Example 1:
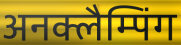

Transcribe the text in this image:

अनक्लैम्पिंग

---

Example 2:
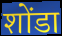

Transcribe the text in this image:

शोंडा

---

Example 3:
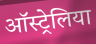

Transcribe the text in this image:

ऑस्‍ट्रेलिया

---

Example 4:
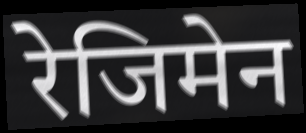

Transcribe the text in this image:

रेजिमेन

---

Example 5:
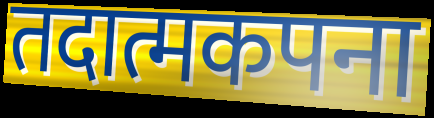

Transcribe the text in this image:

तदात्मकपना